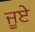
ਜੂਏ